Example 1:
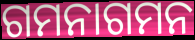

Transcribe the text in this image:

ଗମନାଗମନ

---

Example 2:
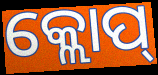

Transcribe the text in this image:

କ୍ଲୋପ୍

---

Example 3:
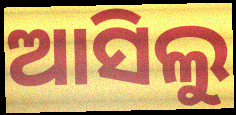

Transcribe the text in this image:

ଆସିଲୁ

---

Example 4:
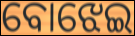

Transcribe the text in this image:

ବୋଝେଇ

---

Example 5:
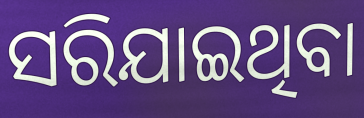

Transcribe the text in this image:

ସରିଯାଇଥିବା